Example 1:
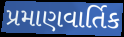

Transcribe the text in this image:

પ્રમાણવાર્તિક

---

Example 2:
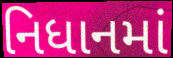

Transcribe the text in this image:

નિધાનમાં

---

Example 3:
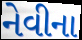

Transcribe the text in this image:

નેવીના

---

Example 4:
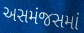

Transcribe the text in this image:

અસમંજસમાં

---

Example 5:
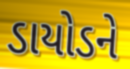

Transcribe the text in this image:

ડાયોડને